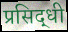
प्रसिद्धी